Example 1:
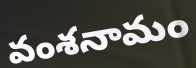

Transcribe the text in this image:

వంశనామం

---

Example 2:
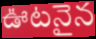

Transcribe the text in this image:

ఊటనైన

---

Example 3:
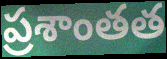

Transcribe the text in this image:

ప్రశాంతత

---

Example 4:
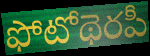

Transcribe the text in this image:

ఫోటోథెరపీ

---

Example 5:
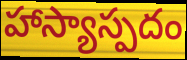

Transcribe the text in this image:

హాస్యాస్పదం